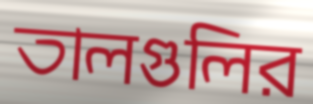
তালগুলির